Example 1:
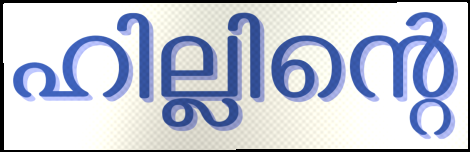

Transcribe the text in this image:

ഹില്ലിന്റെ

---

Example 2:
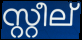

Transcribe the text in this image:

സ്റ്റീല്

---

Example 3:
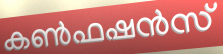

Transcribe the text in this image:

കൺഫഷൻസ്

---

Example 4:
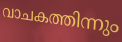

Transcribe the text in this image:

വാചകത്തിന്നും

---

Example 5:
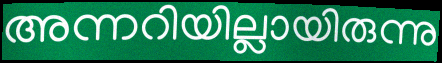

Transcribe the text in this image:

അന്നറിയില്ലായിരുന്നു